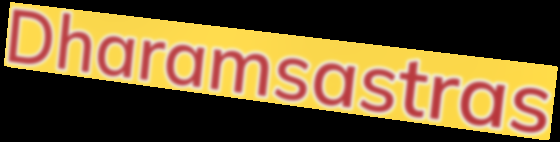
Dharamsastras